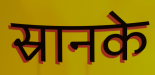
स्रानके